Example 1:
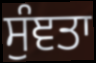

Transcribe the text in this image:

ਸੁੰਞਤਾ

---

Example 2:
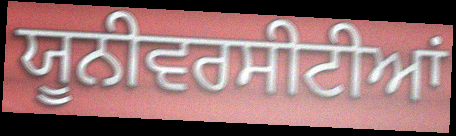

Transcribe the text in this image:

ਯੂਨੀਵਰਸੀਟੀਆਂ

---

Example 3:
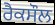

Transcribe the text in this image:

ਰੈਕਸੌਲ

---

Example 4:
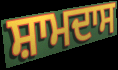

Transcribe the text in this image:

ਸ਼ਾਮਦਾਸ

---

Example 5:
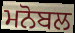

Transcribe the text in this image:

ਮਨੋਬਲ